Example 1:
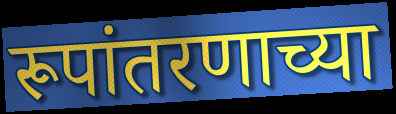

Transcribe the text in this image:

रूपांतरणाच्या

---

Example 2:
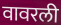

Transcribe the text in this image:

वावरली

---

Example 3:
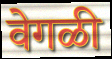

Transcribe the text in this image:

वेगळी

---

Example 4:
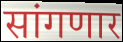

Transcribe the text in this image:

सांगणार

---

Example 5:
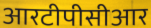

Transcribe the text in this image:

आरटीपीसीआर